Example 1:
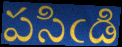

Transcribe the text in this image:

పసిఁడి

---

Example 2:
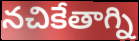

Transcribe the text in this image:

నచికేతాగ్ని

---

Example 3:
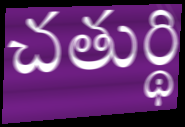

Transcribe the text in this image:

చతుర్థి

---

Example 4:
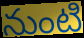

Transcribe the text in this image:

నుంటి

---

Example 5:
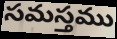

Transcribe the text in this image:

సమస్తము